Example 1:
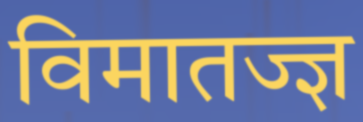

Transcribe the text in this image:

विमातज्ज्ञ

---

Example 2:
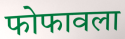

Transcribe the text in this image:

फोफावला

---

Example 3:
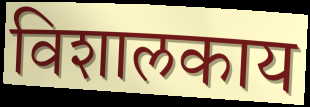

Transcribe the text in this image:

विशालकाय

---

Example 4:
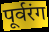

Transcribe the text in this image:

पूर्वरंग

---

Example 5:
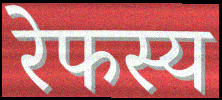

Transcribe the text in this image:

रेफस्य